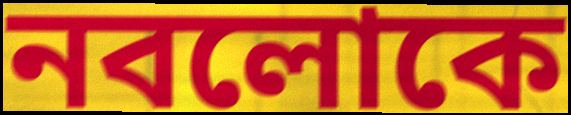
নবলোকে